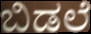
ಬಿಡಲೆ